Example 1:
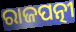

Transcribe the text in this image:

ରାଜପତ୍ନୀ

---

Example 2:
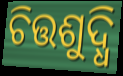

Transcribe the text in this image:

ଚିତ୍ତଶୁଦ୍ଧି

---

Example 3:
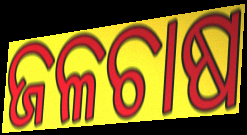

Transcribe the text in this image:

ଜଳଚାଷ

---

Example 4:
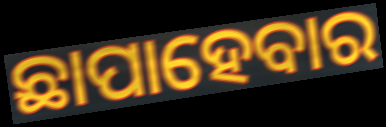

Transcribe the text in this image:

ଛାପାହେବାର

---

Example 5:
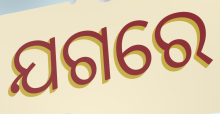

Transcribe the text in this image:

ଯଗରେ